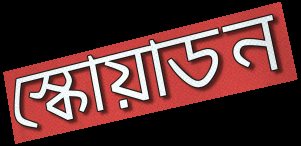
স্কোয়াডন